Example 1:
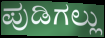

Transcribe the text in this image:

ಪುಡಿಗಲ್ಲು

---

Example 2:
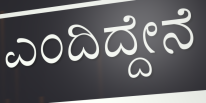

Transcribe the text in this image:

ಎಂದಿದ್ದೇನೆ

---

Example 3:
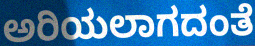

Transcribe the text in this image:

ಅರಿಯಲಾಗದಂತೆ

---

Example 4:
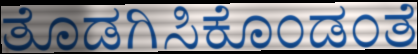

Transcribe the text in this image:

ತೊಡಗಿಸಿಕೊಂಡಂತೆ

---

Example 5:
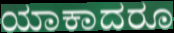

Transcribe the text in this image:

ಯಾಕಾದರೂ